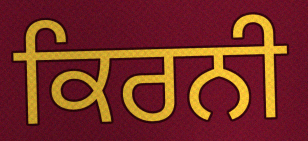
ਕਿਰਨੀ